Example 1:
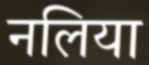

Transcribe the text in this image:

नलिया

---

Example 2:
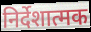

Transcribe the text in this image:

निर्देशात्मक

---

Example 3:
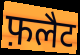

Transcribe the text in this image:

फ़लैट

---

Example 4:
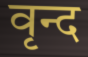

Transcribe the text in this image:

वृन्द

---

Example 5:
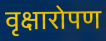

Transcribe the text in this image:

वृक्षारोपण